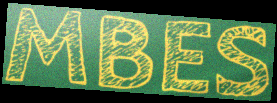
MBES